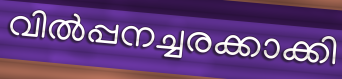
വിൽപ്പനച്ചരക്കാക്കി